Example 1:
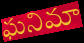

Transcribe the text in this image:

ఘనిమా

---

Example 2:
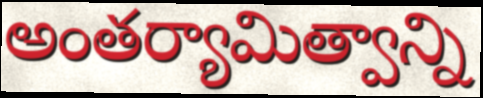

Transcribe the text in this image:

అంతర్యామిత్వాన్ని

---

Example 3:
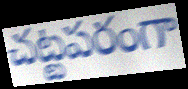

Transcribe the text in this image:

చట్టపరంగా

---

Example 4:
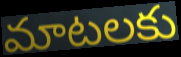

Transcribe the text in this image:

మాటలకు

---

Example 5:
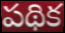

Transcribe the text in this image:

పథిక